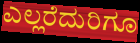
ಎಲ್ಲರೆದುರಿಗೂ